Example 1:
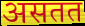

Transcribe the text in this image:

असतत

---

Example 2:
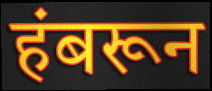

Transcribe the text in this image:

हंबरून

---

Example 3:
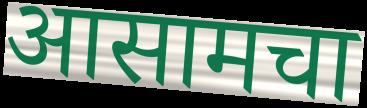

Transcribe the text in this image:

आसामचा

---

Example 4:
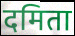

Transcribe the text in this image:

दमिता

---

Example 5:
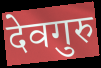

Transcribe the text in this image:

देवगुरु